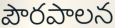
పౌరపాలన